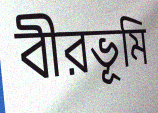
বীরভূমি